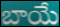
బాయే